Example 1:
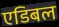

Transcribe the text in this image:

एडिबल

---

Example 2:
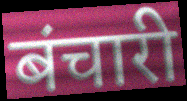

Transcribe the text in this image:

बंचारी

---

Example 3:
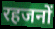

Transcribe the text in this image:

रहजनों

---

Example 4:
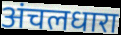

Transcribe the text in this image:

अंचलधारा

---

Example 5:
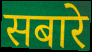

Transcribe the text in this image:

सबारे